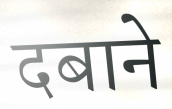
दबाने